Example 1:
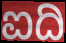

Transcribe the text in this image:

ಐದಿ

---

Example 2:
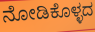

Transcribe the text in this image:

ನೋಡಿಕೊಳ್ಳದ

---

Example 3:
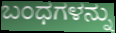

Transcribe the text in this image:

ಬಂಧಗಳನ್ನು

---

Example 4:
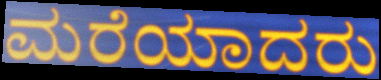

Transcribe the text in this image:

ಮರೆಯಾದರು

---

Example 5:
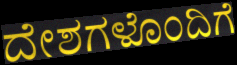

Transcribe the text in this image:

ದೇಶಗಳೊಂದಿಗೆ